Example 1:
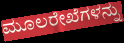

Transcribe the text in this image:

ಮೂಲರೇಖೆಗಳನ್ನು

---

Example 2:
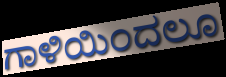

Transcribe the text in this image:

ಗಾಳಿಯಿಂದಲೂ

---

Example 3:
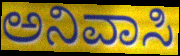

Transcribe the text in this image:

ಅನಿವಾಸಿ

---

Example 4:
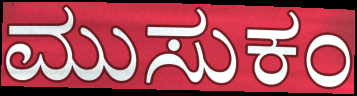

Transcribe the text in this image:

ಮುಸುಕಂ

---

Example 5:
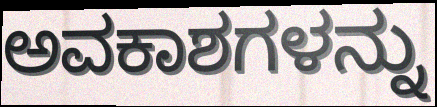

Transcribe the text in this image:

ಅವಕಾಶಗಳನ್ನು